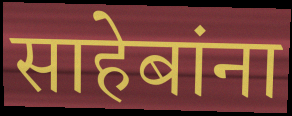
साहेबांना